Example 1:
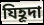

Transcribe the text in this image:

যিহূদা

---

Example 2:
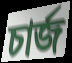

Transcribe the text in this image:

চার্জ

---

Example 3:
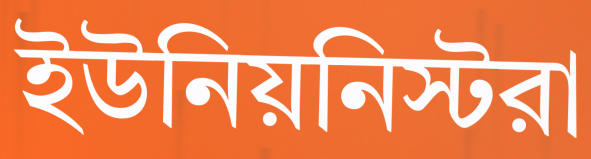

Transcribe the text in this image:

ইউনিয়নিস্টরা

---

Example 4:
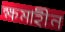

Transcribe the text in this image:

ক্ষমাহীন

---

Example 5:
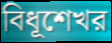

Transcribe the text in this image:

বিধূশেখর